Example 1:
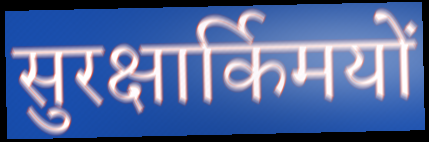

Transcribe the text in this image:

सुरक्षार्किमयों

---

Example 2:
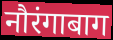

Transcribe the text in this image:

नौरंगाबाग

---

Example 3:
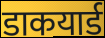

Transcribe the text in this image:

डाकयार्ड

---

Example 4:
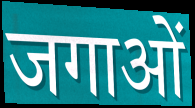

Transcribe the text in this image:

जगाओं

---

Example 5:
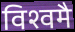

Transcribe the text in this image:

विश्वमै